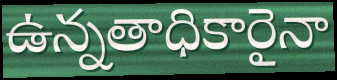
ఉన్నతాధికారైనా